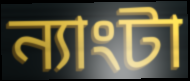
ন্যাংটা